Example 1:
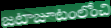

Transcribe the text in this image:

జటాజూటంలోంచి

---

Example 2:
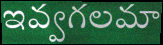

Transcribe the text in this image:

ఇవ్వగలమా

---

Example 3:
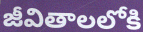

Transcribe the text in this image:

జీవితాలలోకి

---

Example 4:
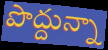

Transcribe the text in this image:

పొద్దున్నా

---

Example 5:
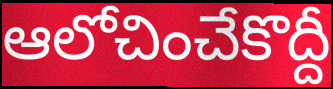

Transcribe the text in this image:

ఆలోచించేకొద్దీ